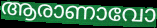
ആരാണാവോ